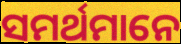
ସମର୍ଥମାନେ